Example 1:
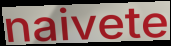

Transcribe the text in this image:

naivete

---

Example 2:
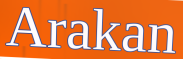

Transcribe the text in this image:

Arakan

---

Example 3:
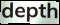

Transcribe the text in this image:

depth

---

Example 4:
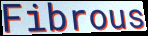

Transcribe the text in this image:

Fibrous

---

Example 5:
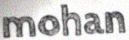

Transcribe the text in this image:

mohan